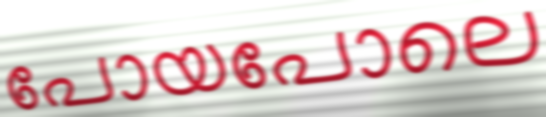
പോയപോലെ